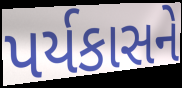
પર્યકાસને